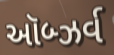
ઑબ્ઝર્વ